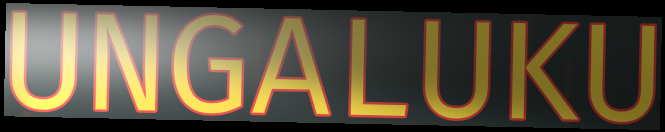
UNGALUKU